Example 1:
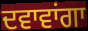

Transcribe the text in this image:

ਦਵਾਵਾਂਗਾ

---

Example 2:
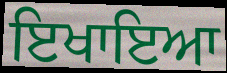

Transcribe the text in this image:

ਇਖਾਇਆ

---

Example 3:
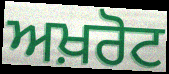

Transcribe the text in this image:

ਅਖ਼ਰੋਟ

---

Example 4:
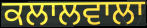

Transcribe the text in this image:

ਕਲਾਲਵਾਲਾ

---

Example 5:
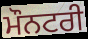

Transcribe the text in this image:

ਮੌਨਟਰੀ